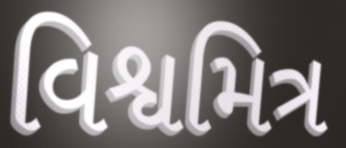
વિશ્વમિત્ર